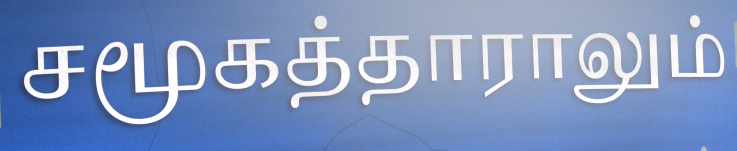
சமூகத்தாராலும்